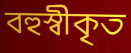
বহুস্বীকৃত